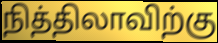
நித்திலாவிற்கு